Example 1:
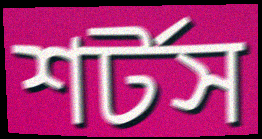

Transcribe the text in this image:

শর্টস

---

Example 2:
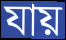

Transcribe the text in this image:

যায়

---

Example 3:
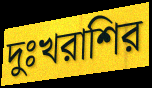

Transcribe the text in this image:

দুঃখরাশির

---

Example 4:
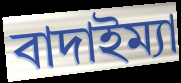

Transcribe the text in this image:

বাদাইম্যা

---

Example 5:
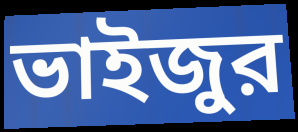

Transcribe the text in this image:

ভাইজুর